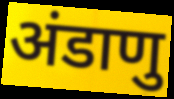
अंडाणु